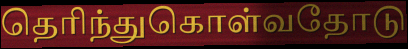
தெரிந்துகொள்வதோடு